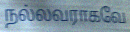
நல்லவராகவே